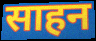
साहन